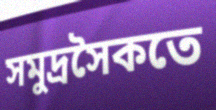
সমুদ্রসৈকতে